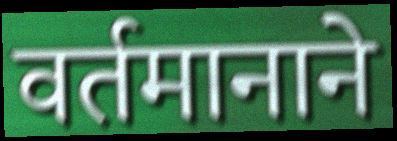
वर्तमानाने